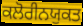
ਕਲੋਰੀਨਯੁਕਤ